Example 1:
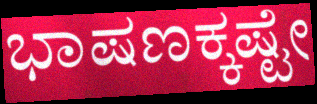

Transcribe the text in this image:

ಭಾಷಣಕ್ಕಷ್ಟೇ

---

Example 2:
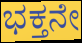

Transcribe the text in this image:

ಭಕ್ತನೇ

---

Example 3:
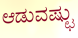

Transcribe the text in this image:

ಆಡುವಷ್ಟು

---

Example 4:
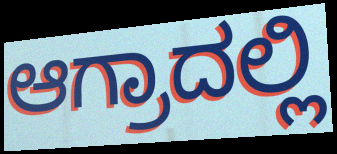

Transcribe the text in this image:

ಆಗ್ರಾದಲ್ಲಿ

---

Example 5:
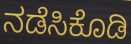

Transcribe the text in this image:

ನಡೆಸಿಕೊಡಿ